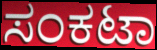
ಸಂಕಟಾ